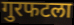
गुरफटला